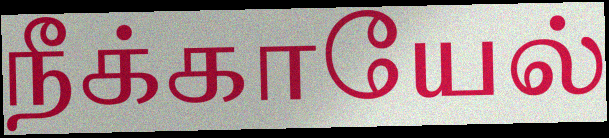
நீக்காயேல்